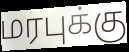
மரபுக்கு